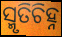
ସ୍ମୃତିଚିହ୍ନ